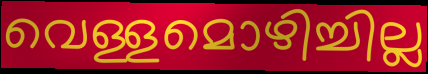
വെള്ളമൊഴിച്ചില്ല